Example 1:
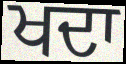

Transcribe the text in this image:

ਖਦਾ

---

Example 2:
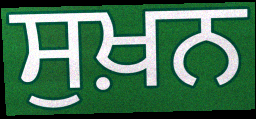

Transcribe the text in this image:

ਸੁਖ਼ਨ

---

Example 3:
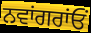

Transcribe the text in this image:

ਨਵਾਂਗਰਾਂਓਂ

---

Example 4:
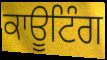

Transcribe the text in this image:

ਕਾਊਟਿੰਗ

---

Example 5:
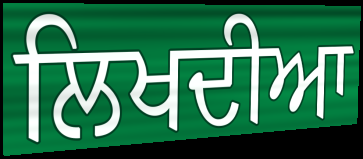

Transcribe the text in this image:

ਲਿਖਦੀਆ